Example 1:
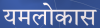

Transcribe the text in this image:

यमलोकास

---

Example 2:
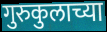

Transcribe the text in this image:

गुरुकुलाच्या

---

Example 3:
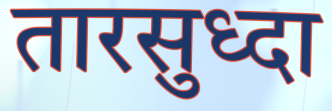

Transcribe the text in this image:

तारसुध्दा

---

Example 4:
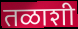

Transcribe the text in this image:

तळाशी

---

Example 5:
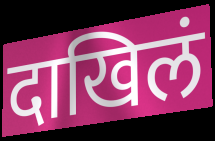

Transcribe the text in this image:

दाखिलं